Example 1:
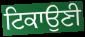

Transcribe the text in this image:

ਟਿਕਾਉਣੀ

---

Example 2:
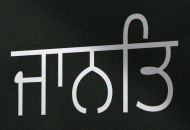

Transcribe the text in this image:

ਜਾਨਤਿ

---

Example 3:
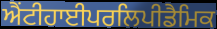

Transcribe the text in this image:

ਐਂਟੀਹਾਈਪਰਲਿਪੀਡੈਮਿਕ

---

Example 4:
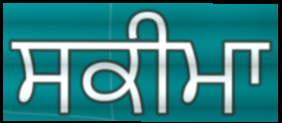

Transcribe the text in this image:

ਸਕੀਮਾ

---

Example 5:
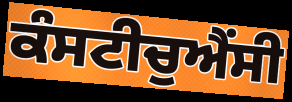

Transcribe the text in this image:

ਕੰਸਟੀਚੁਐਂਸੀ